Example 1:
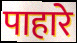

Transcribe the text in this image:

पाहारे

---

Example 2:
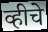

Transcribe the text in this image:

व्हीचे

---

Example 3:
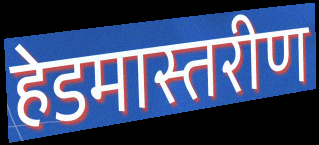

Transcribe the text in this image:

हेडमास्तरीण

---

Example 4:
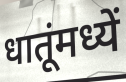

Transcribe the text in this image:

धातूंमध्यें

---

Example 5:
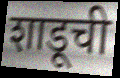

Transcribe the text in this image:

शाडूची